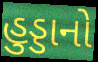
હુડ્ડાનો